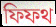
ফিফথ